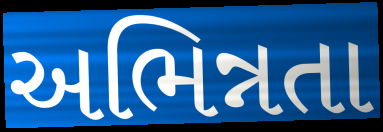
અભિન્નતા